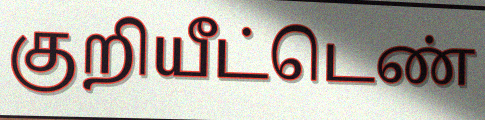
குறியீட்டெண்